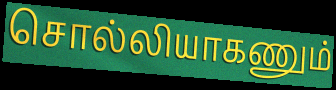
சொல்லியாகணும்